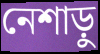
নেশাড়ু